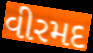
વીરમદ